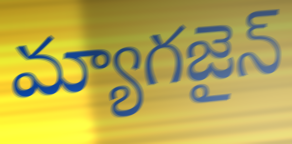
మ్యాగజైన్